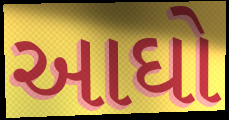
આઘો